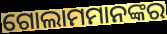
ଗୋଲାମମାନଙ୍କର